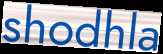
shodhla